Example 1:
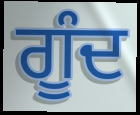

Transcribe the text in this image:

ਗੂੰਦ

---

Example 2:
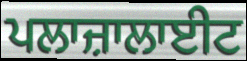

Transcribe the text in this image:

ਪਲਾਜ਼ਾਲਾਈਟ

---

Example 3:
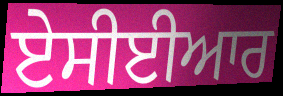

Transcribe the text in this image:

ਏਸੀਈਆਰ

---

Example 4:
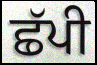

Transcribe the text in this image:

ਛੱਪੀ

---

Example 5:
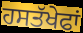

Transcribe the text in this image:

ਹਸਤੱਖੇਫਾਂ